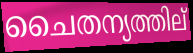
ചൈതന്യത്തില്